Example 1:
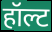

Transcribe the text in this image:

हॉल्ट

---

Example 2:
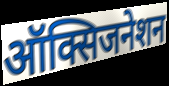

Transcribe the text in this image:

ऑक्सिजनेशन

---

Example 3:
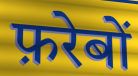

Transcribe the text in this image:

फ़रेबों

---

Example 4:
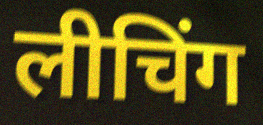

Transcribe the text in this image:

लीचिंग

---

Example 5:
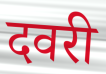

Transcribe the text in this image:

दवरी